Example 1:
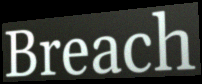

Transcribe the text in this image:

Breach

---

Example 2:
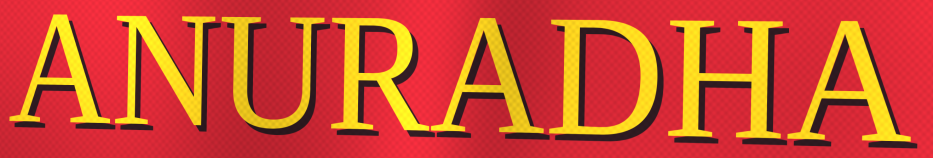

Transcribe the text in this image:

ANURADHA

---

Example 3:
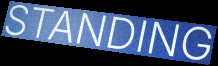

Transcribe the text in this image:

STANDING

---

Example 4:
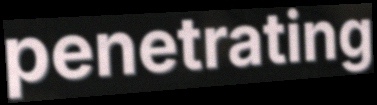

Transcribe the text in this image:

penetrating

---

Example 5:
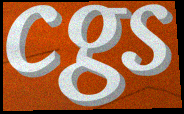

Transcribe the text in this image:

cgs